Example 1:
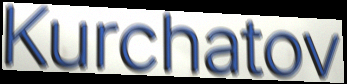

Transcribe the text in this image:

Kurchatov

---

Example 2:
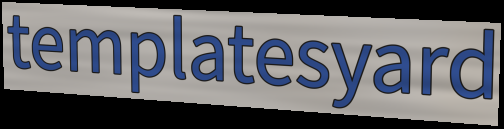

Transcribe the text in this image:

templatesyard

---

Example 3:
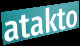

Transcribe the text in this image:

atakto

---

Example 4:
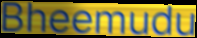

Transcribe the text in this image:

Bheemudu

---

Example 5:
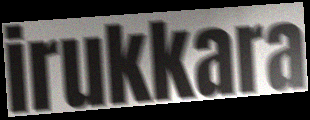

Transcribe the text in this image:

irukkara